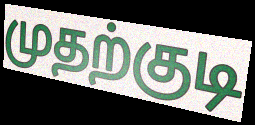
முதற்குடி